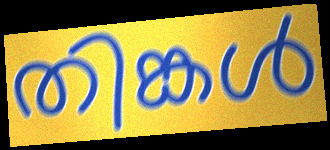
തിങ്കൾ